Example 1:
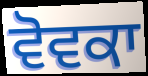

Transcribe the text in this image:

ਵੋਵਕਾ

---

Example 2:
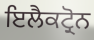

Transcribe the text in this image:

ਇਲੈਕਟ੍ਰੋਨ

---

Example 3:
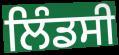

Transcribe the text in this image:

ਲਿੰਡਸੀ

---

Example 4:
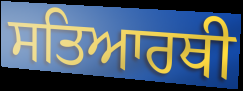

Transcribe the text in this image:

ਸਤਿਆਰਥੀ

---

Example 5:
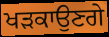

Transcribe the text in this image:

ਖੜਕਾਉਣਗੇ